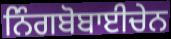
ਨਿੰਗਬੋਬਾਈਚੇਨ